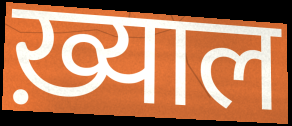
ख़्याल